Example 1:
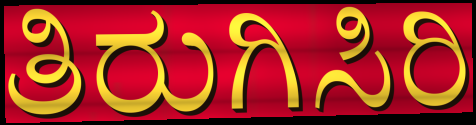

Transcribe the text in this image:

ತಿರುಗಿಸಿರಿ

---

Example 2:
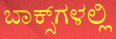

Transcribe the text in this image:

ಬಾಕ್ಸ್‌ಗಳಲ್ಲಿ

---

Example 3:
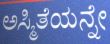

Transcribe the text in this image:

ಅಸ್ಮಿತೆಯನ್ನೇ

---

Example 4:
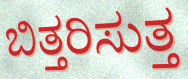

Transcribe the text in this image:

ಬಿತ್ತರಿಸುತ್ತ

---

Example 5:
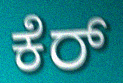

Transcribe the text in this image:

ಕೆರ್